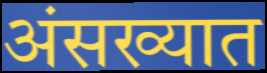
अंसख्यात